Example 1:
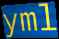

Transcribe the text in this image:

yml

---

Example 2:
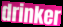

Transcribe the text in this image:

drinker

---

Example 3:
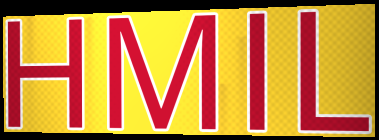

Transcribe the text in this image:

HMIL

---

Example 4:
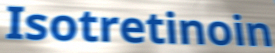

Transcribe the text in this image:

Isotretinoin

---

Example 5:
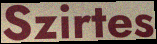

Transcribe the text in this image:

Szirtes